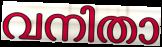
വനിതാ